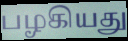
பழகியது